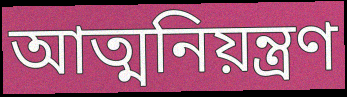
আত্মনিয়ন্ত্রণ